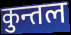
कुन्तल